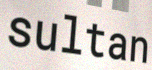
sultan